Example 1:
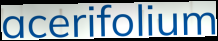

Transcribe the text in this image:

acerifolium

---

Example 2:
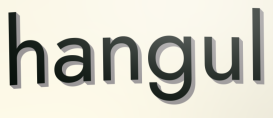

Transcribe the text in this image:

hangul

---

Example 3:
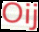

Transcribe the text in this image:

Oij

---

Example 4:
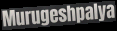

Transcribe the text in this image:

Murugeshpalya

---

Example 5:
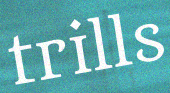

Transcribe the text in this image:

trills